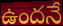
ఉందనే